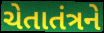
ચેતાતંત્રને